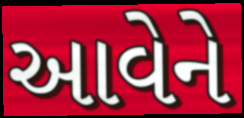
આવેને